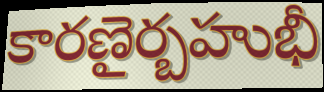
కారణైర్బహుభీ